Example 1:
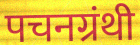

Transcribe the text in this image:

पचनग्रंथी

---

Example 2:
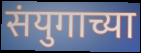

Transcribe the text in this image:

संयुगाच्या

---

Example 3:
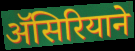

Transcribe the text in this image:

ॲसिरियाने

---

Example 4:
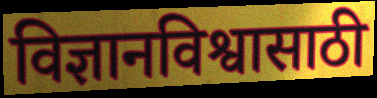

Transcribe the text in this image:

विज्ञानविश्वासाठी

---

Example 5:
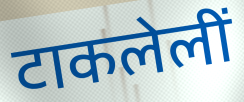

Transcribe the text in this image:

टाकलेलीं